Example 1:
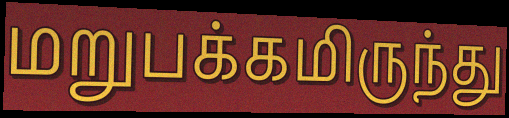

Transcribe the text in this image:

மறுபக்கமிருந்து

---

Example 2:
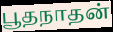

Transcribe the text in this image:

பூதநாதன்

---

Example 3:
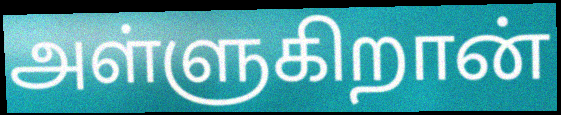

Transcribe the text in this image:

அள்ளுகிறான்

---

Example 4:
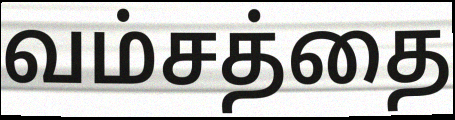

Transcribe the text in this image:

வம்சத்தை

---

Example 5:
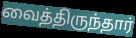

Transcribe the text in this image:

வைத்திருந்தார்